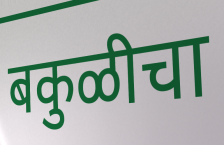
बकुळीचा